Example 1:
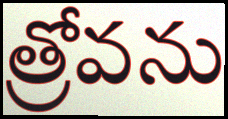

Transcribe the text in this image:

త్రోవను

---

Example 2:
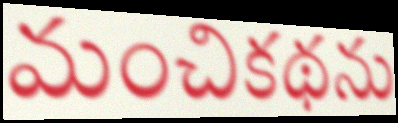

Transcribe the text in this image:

మంచికథను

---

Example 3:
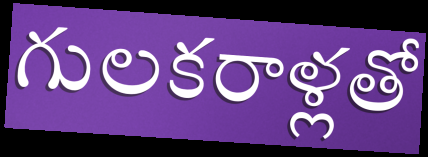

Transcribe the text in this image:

గులకరాళ్లతో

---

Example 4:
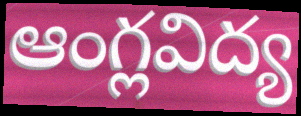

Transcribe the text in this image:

ఆంగ్లవిద్య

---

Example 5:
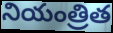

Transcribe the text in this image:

నియంత్రిత